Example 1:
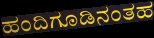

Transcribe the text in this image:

ಹಂದಿಗೂಡಿನಂತಹ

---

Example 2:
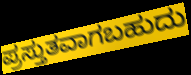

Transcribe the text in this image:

ಪ್ರಸ್ತುತವಾಗಬಹುದು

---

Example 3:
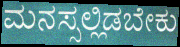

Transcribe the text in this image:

ಮನಸ್ಸಲ್ಲಿಡಬೇಕು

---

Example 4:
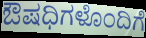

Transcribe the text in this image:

ಔಷಧಿಗಳೊಂದಿಗೆ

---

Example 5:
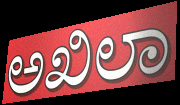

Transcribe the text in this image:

ಅಖಿಲಾ